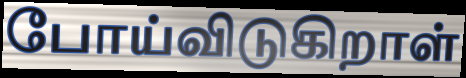
போய்விடுகிறாள்